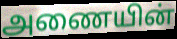
அணையின்